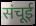
संचूई